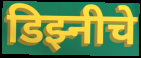
डिझ्नीचे